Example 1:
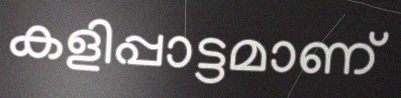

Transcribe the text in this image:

കളിപ്പാട്ടമാണ്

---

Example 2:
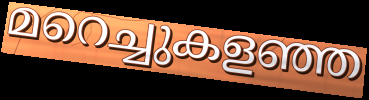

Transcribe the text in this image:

മറെച്ചുകളഞ്ഞ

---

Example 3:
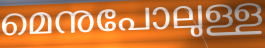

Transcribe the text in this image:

മെനുപോലുള്ള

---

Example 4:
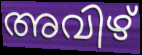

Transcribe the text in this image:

അവിഴ്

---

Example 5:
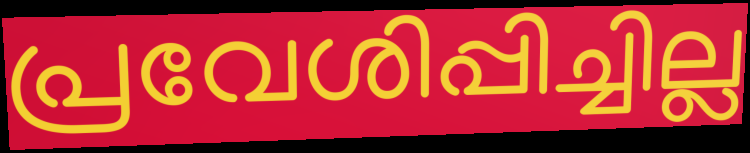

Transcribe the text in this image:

പ്രവേശിപ്പിച്ചില്ല